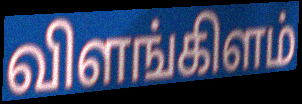
விளங்கிளம்